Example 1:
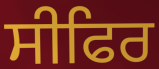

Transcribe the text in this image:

ਸੀਫਿਰ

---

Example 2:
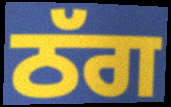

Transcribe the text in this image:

ਠੱਗ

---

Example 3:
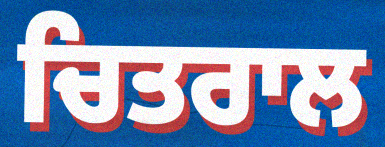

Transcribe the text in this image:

ਚਿਤਰਾਲ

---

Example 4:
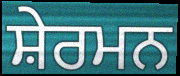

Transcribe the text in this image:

ਸ਼ੇਰਮਨ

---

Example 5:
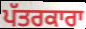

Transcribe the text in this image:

ਪੱਤਰਕਾਰਾ